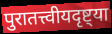
पुरातत्त्वीयदृष्ट्या